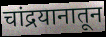
चांद्रयानातून